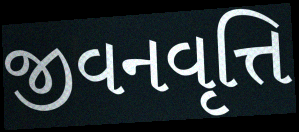
જીવનવૃત્તિ